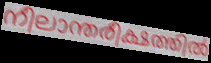
നീലാന്തരീക്ഷത്തിൽ